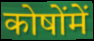
कोषोंमें